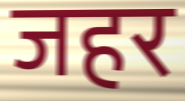
जहर